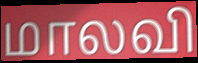
மாலவி